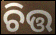
ଚିତ୍ତ